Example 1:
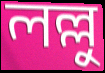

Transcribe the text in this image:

লল্লু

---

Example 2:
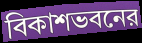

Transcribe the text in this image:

বিকাশভবনের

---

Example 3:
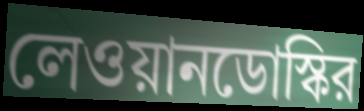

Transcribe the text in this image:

লেওয়ানডোস্কির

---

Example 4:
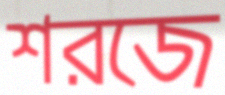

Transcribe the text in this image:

শরজে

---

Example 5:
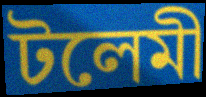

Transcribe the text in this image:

টলেমী